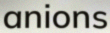
anions